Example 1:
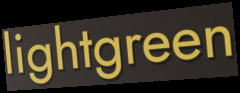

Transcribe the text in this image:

lightgreen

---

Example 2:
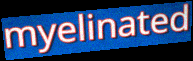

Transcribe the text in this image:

myelinated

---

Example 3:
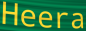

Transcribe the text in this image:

Heera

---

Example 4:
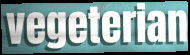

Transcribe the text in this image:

vegeterian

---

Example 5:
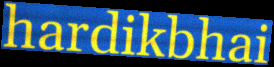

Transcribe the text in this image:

hardikbhai